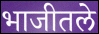
भाजीतले